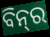
ବିନ୍‍ର